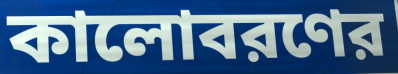
কালোবরণের